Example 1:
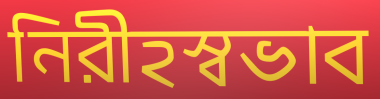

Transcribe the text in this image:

নিরীহস্বভাব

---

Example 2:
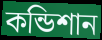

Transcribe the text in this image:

কন্ডিশান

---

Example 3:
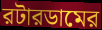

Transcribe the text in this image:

রটারডামের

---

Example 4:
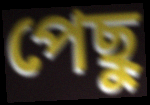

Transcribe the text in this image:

পেছু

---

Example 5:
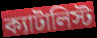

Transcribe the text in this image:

ক্যাটালিস্ট